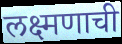
लक्ष्मणाची